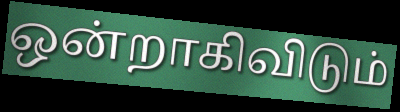
ஒன்றாகிவிடும்